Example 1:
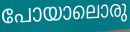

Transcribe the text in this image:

പോയാലൊരു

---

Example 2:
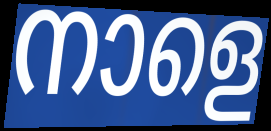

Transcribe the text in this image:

നാളെ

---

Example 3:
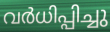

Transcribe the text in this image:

വർധിപ്പിച്ചു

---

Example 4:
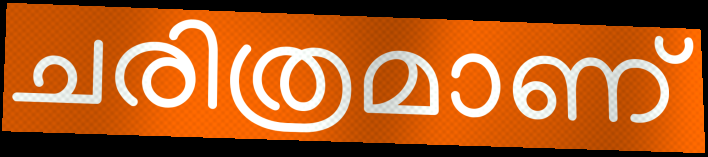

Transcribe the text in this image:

ചരിത്രമാണ്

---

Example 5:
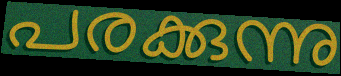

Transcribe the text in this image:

പരക്കുന്നു